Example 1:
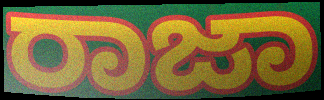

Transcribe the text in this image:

ರಾಜಾ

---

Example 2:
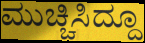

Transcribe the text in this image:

ಮುಚ್ಚಿಸಿದ್ದೂ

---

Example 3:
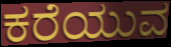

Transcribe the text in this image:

ಕರೆಯುವ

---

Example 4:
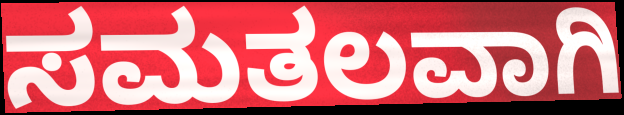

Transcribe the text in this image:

ಸಮತಲವಾಗಿ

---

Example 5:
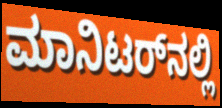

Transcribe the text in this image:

ಮಾನಿಟರ್‌ನಲ್ಲಿ